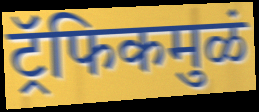
ट्रॅफिकमुळं